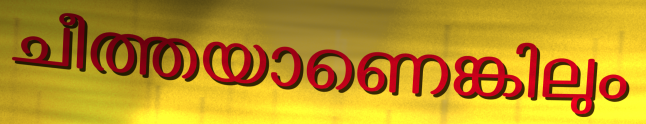
ചീത്തയാണെങ്കിലും